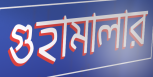
গুহামালার